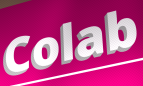
Colab